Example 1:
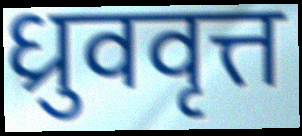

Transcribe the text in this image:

ध्रुववृत्त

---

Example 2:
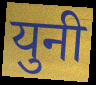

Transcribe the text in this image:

युनी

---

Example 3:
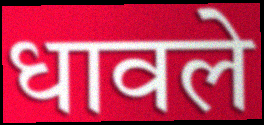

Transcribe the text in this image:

धावले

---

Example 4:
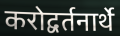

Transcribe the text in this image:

करोद्वर्तनार्थे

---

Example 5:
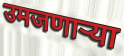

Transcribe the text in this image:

उमजणाऱ्या